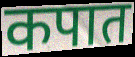
कपात